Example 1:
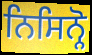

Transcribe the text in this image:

ਨਿਸਿਨ੍ਨੋ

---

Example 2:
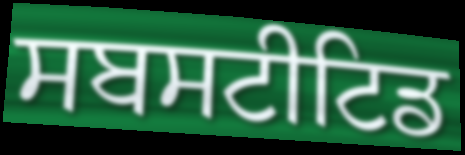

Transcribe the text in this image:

ਸਬਸਟੀਟਿਡ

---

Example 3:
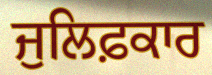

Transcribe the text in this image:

ਜੁਲਿਫ਼ਕਾਰ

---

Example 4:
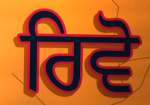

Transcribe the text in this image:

ਰਿਵੋ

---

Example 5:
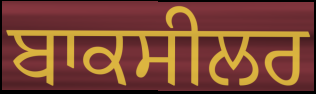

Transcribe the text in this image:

ਬਾਕਸੀਲਰ